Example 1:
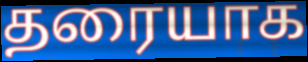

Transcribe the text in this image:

தரையாக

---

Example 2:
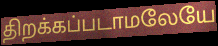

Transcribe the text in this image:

திறக்கப்படாமலேயே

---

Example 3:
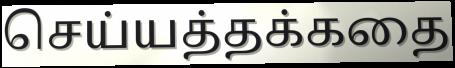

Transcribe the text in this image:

செய்யத்தக்கதை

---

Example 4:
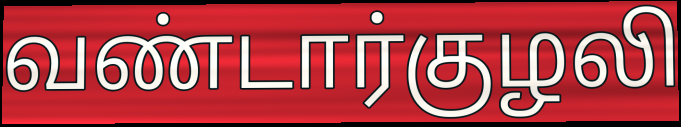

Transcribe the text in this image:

வண்டார்குழலி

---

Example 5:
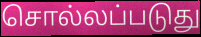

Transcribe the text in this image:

சொல்லப்படுது